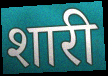
शारी